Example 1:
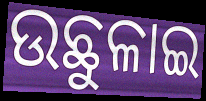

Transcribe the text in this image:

ଉଛୁଳାଇ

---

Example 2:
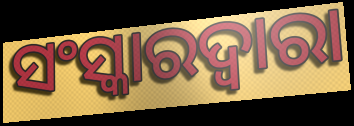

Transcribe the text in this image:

ସଂସ୍କାରଦ୍ୱାରା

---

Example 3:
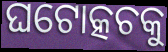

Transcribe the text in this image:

ଘଟୋତ୍କଚକୁ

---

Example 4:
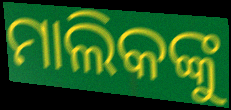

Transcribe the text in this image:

ମାଲିକଙ୍କୁ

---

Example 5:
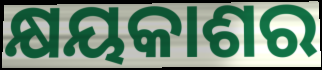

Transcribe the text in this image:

କ୍ଷୟକାଶର